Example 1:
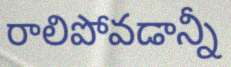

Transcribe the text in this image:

రాలిపోవడాన్నీ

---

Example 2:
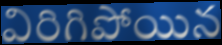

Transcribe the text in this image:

విరిగిపోయిన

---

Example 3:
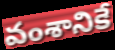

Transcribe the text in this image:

వంశానికే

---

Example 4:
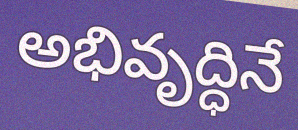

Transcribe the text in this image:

అభివృద్ధినే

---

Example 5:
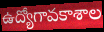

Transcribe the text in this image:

ఉద్యోగావకాశాల